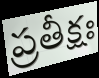
ప్రతీక్షః